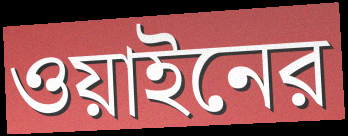
ওয়াইনের